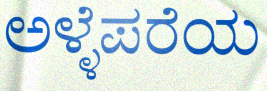
ಅಳ್ಳೆಪರೆಯ